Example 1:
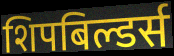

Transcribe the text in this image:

शिपबिल्डर्स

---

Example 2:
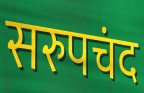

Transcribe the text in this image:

सरुपचंद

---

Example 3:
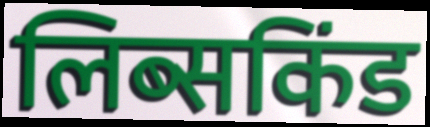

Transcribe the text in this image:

लिब्सकिंड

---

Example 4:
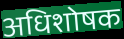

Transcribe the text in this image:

अधिशोषक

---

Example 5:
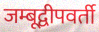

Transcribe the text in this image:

जम्बूद्वीपवर्ती